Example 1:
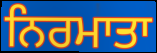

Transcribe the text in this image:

ਨਿਰਮਾਤਾ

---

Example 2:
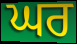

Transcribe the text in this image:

ਘਰ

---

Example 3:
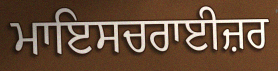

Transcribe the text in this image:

ਮਾਇਸਚਰਾਈਜ਼ਰ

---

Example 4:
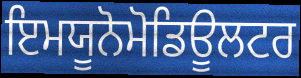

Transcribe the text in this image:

ਇਮਯੂਨੋਮੋਡਿਊਲਟਰ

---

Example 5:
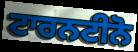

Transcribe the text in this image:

ਟਾਰਨਟੀਨੋ